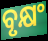
ବୃକ୍ଷଂ